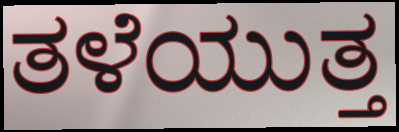
ತಳೆಯುತ್ತ